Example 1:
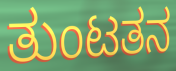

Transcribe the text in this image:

ತುಂಟತನ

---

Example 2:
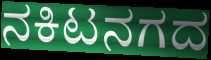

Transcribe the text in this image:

ನಕಿಟನಗದ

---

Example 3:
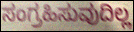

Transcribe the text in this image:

ಸಂಗ್ರಹಿಸುವುದಿಲ್ಲ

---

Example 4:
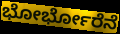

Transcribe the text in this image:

ಭೋರ್ಭೋರೆನೆ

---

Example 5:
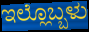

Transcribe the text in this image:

ಇಲ್ಲೊಬ್ಬಳು